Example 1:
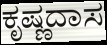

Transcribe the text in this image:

ಕೃಷ್ಣದಾಸ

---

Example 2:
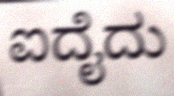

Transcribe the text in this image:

ಐದೈದು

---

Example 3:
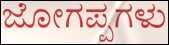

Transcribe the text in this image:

ಜೋಗಪ್ಪಗಳು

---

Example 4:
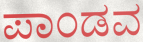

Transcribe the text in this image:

ಪಾಂಡವ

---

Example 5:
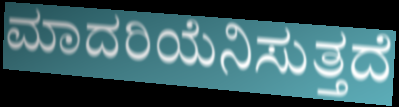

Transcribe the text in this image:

ಮಾದರಿಯೆನಿಸುತ್ತದೆ